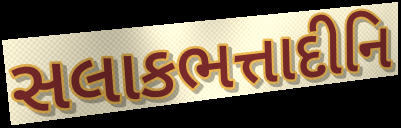
સલાકભત્તાદીનિ